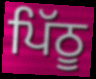
ਪਿੱਠੂ